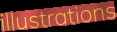
illustrations